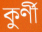
কুর্ণী